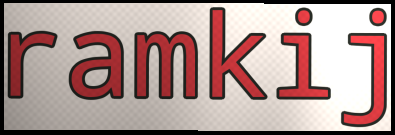
ramkij